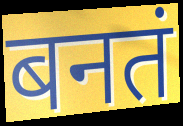
बनतं